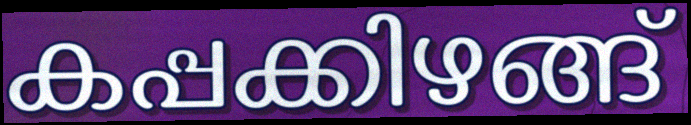
കപ്പക്കിഴങ്ങ്